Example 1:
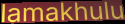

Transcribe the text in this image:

lamakhulu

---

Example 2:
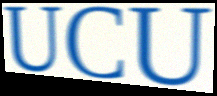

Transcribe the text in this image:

UCU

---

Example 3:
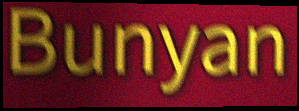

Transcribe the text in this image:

Bunyan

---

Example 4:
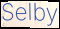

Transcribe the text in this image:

Selby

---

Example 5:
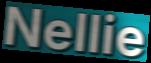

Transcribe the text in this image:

Nellie